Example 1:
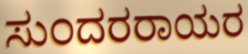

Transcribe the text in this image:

ಸುಂದರರಾಯರ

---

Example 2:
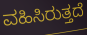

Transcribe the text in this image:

ವಹಿಸಿರುತ್ತದೆ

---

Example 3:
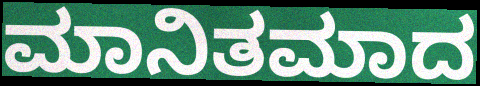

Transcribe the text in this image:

ಮಾನಿತಮಾದ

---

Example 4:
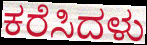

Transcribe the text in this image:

ಕರೆಸಿದಳು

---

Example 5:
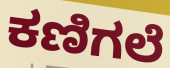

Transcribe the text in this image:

ಕಣಿಗಲೆ